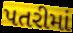
પતરીમાં